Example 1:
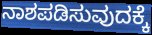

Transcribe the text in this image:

ನಾಶಪಡಿಸುವುದಕ್ಕೆ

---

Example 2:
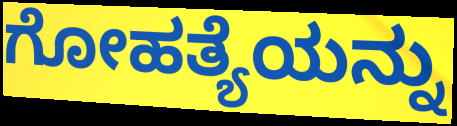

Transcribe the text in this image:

ಗೋಹತ್ಯೆಯನ್ನು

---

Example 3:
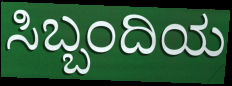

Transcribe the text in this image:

ಸಿಬ್ಬಂದಿಯ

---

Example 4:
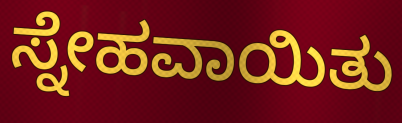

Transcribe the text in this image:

ಸ್ನೇಹವಾಯಿತು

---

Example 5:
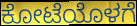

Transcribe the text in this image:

ಕೋಟೆಯೊಳಗೆ